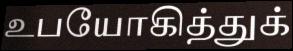
உபயோகித்துக்